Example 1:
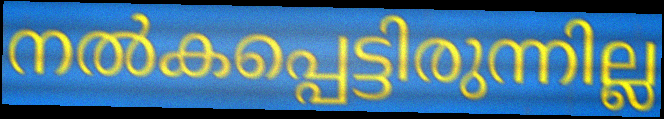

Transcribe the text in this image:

നൽകപ്പെട്ടിരുന്നില്ല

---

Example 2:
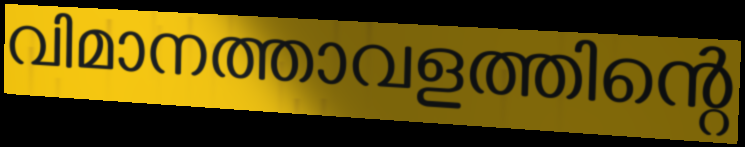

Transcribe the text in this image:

വിമാനത്താവളത്തിന്റെ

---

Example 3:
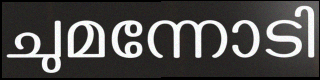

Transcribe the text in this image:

ചുമന്നോടി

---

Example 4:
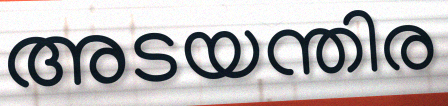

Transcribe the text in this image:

അടയന്തിര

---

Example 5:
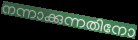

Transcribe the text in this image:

നന്നാക്കുന്നതിനോ